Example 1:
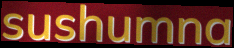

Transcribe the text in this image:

sushumna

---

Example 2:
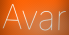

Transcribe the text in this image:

Avar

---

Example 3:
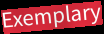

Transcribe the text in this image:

Exemplary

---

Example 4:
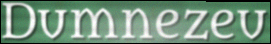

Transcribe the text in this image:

Dumnezeu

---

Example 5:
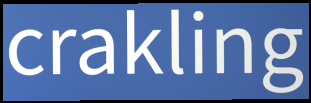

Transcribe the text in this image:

crakling